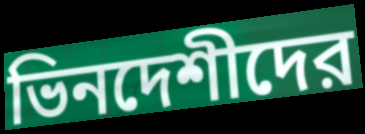
ভিনদেশীদের